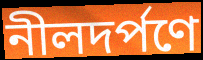
নীলদর্পণে